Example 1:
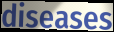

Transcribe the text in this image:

diseases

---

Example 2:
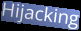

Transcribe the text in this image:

Hijacking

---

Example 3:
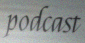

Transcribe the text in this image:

podcast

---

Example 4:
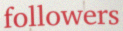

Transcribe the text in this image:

followers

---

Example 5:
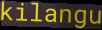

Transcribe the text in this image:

kilangu